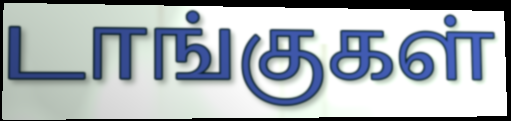
டாங்குகள்